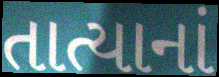
તાત્યાનાં